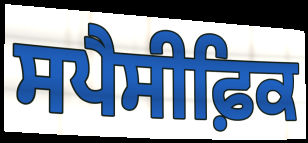
ਸਪੈਸੀਫ਼ਿਕ